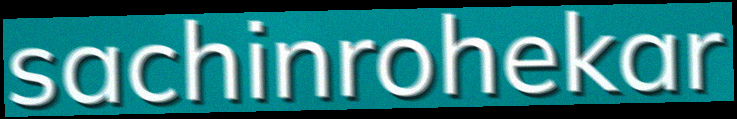
sachinrohekar